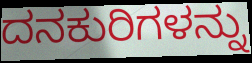
ದನಕುರಿಗಳನ್ನು